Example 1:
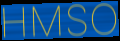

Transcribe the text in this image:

HMSO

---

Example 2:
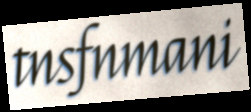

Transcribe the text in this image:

tnsfnmani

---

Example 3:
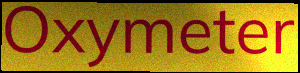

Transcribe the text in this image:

Oxymeter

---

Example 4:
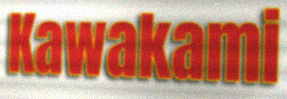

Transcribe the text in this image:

Kawakami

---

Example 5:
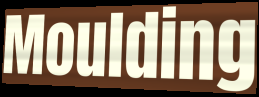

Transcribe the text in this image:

Moulding